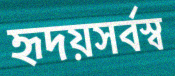
হৃদয়সর্বস্ব